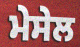
ਮੇਸੇਲ